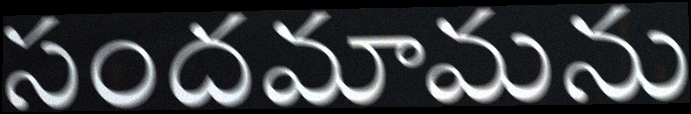
సందమామను